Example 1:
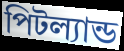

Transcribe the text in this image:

পিটল্যান্ড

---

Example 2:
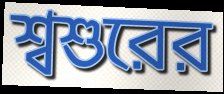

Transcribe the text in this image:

শ্বশুরের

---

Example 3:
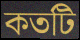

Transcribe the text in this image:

কতটি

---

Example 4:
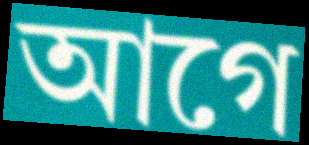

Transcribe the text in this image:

আগে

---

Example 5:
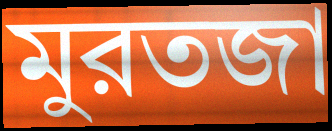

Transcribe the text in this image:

মুরতজা